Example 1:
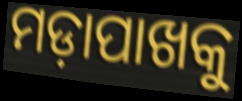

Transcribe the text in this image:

ମଡ଼ାପାଖକୁ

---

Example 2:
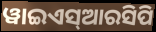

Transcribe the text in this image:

ୱାଇଏସ୍ଆରସିପି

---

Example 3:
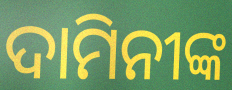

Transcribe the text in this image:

ଦାମିନୀଙ୍କ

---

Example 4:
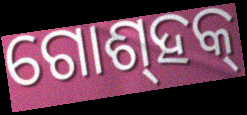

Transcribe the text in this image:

ଗୋଶ୍‍ହକ୍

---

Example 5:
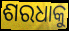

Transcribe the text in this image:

ଶରଧାକୁ